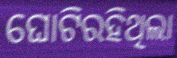
ଘୋଟିରହିଥିଲା